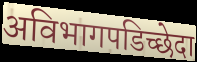
अविभागपडिच्छेदा